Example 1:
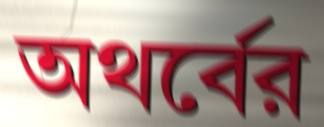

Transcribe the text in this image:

অথর্বের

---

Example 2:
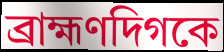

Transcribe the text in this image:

ব্রাহ্মণদিগকে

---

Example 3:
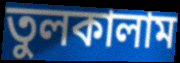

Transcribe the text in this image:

তুলকালাম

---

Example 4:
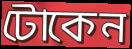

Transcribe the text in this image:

টোকেন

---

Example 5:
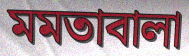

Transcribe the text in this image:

মমতাবালা